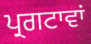
ਪ੍ਰਗਟਾਵਾਂ